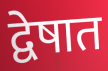
द्वेषात